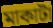
মাকাটা